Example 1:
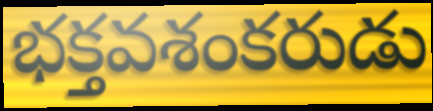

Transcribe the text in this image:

భక్తవశంకరుడు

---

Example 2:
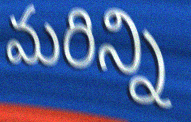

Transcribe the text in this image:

మరిన్ని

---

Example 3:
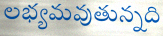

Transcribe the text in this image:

లభ్యమవుతున్నది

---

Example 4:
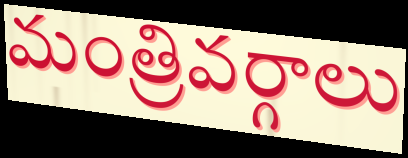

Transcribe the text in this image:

మంత్రివర్గాలు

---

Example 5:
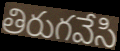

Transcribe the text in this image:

తిరుగవేసి